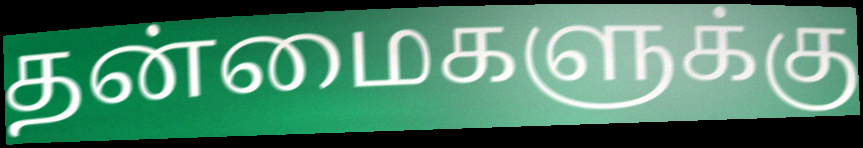
தன்மைகளுக்கு